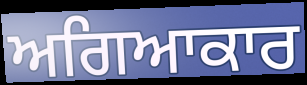
ਅਗਿਆਕਾਰ